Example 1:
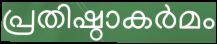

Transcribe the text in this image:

പ്രതിഷ്ഠാകർമം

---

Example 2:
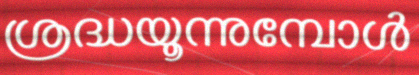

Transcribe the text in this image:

ശ്രദ്ധയൂന്നുമ്പോൾ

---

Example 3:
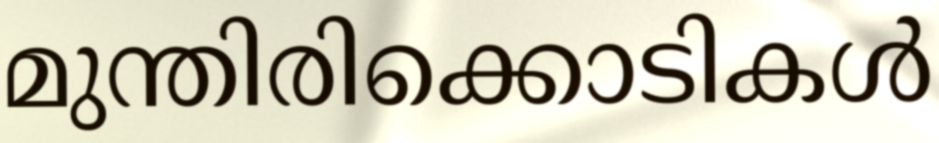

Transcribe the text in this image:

മുന്തിരിക്കൊടികൾ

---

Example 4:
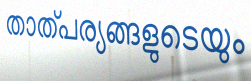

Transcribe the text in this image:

താത്പര്യങ്ങളുടെയും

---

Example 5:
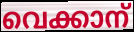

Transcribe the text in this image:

വെക്കാന്